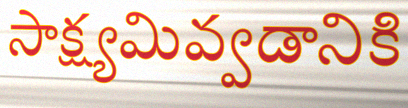
సాక్ష్యమివ్వడానికి